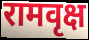
रामवृक्ष